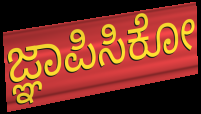
ಜ್ಞಾಪಿಸಿಕೋ